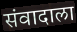
संवादाला